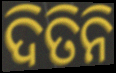
ଦିତିନି